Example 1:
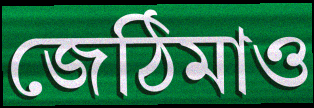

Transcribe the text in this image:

জেঠিমাও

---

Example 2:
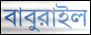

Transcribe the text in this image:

বাবুরাইল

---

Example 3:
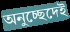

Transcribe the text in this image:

অনুচ্ছেদেই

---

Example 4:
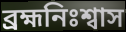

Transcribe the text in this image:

ব্রহ্মনিঃশ্বাস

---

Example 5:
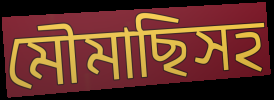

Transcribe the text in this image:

মৌমাছিসহ